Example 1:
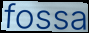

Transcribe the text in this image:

fossa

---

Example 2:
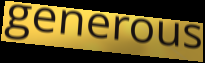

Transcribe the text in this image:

generous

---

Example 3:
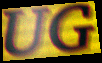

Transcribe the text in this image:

UG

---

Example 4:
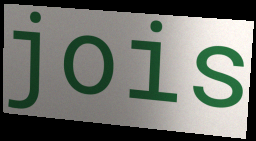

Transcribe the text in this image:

jois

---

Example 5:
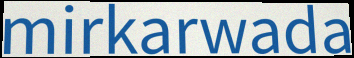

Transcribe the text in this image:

mirkarwada